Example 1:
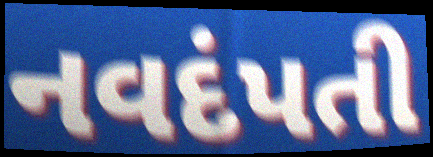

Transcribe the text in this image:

નવદંપતી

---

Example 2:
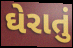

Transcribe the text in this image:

ઘેરાતું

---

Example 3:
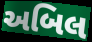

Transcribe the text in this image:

અબિલ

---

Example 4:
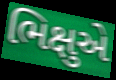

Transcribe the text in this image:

ભિક્ષુએ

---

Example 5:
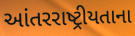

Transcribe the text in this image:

આંતરરાષ્ટ્રીયતાના